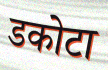
डकोटा